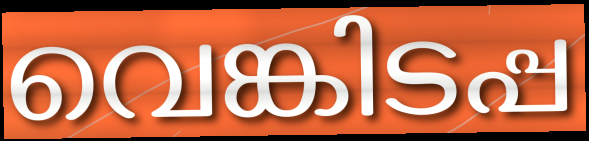
വെങ്കിടപ്പ